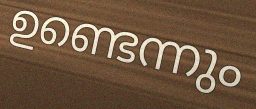
ഉണ്ടെന്നും